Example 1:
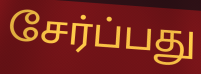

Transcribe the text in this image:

சேர்ப்பது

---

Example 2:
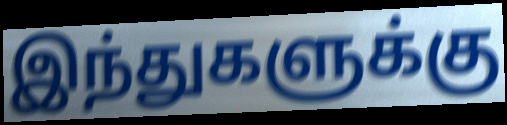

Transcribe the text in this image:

இந்துகளுக்கு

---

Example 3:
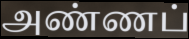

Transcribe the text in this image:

அண்ணப்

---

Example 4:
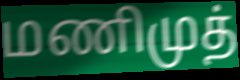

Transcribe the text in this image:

மணிமுத்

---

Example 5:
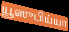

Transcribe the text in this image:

யூஸுபிய்யா